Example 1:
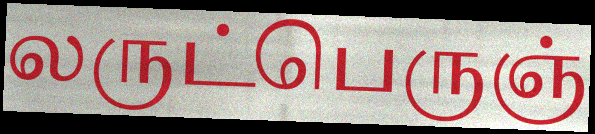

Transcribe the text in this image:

லருட்பெருஞ்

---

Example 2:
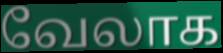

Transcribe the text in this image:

வேலாக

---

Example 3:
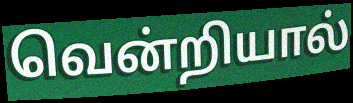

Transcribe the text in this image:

வென்றியால்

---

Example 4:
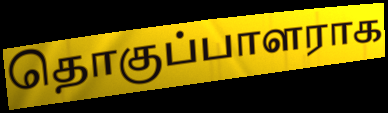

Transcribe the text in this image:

தொகுப்பாளராக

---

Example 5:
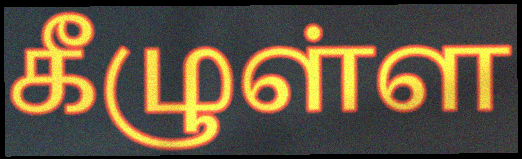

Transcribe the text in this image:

கீழுள்ள